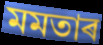
মমতাৰ